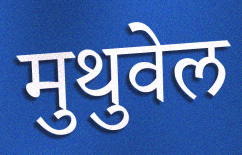
मुथुवेल